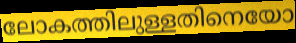
ലോകത്തിലുള്ളതിനെയോ